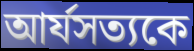
আর্যসত্যকে